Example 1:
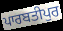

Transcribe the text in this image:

ਪਾਰਬਤੀਪੁਰ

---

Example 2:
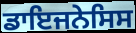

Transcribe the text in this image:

ਡਾਇਜਨੇਸਿਸ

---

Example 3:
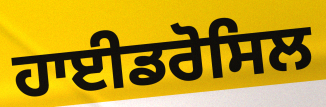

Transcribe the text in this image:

ਹਾਈਡਰੋਸਿਲ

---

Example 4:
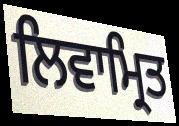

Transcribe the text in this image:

ਲਿਵਾਮ੍ਰਿਤ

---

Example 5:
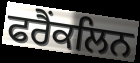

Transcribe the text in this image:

ਫਰੈਂਕਲਿਨ